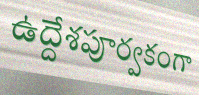
ఉద్దేశపూర్వకంగా